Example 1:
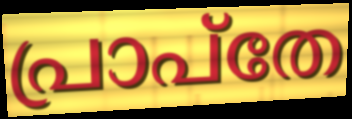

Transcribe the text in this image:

പ്രാപ്തേ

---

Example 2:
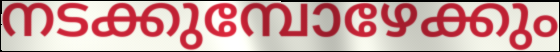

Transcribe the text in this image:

നടക്കുമ്പോഴേക്കും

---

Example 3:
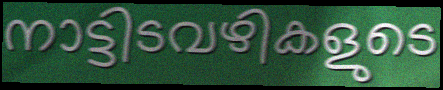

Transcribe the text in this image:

നാട്ടിടവഴികളുടെ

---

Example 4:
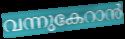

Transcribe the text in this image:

വന്നുകേറാൻ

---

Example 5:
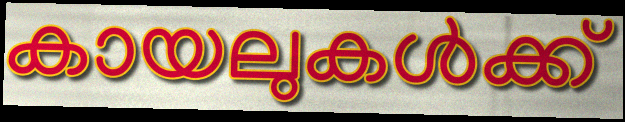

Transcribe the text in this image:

കായലുകൾക്ക്